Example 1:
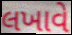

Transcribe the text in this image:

લખાવે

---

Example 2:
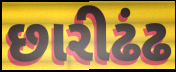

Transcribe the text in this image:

છારીઢંઢ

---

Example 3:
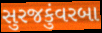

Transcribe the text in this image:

સુરજકુંવરબા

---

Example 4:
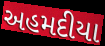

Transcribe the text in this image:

અહમદીયા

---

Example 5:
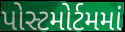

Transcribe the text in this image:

પોસ્ટમોર્ટમમાં